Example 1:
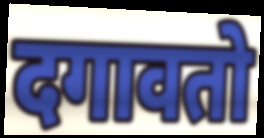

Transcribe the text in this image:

दगावतो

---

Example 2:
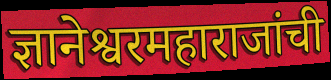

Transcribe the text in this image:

ज्ञानेश्वरमहाराजांची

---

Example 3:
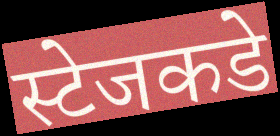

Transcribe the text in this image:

स्टेजकडे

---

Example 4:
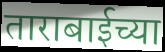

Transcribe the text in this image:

ताराबाईच्या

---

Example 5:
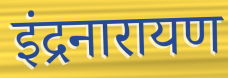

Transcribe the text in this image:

इंद्रनारायण